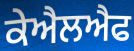
ਕੇਐਲਐਫ